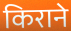
किराने